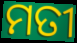
ମତୀ